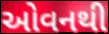
ઓવનથી